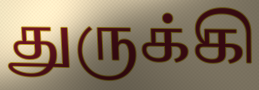
துருக்கி